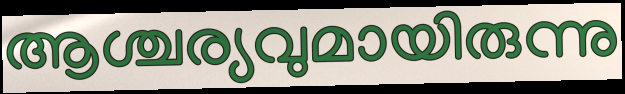
ആശ്ചര്യവുമായിരുന്നു